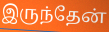
இருந்தேன்